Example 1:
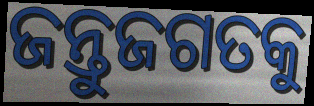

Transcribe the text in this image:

ଜନ୍ତୁଜଗତକୁ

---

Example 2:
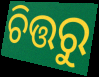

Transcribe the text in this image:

ଚିତ୍ତରୁ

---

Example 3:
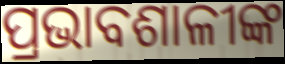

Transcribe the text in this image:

ପ୍ରଭାବଶାଳୀଙ୍କ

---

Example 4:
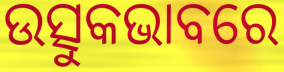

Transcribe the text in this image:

ଉତ୍ସୁକଭାବରେ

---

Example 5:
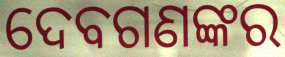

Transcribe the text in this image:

ଦେବଗଣଙ୍କର